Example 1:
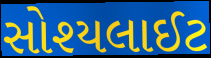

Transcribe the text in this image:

સોશ્યલાઈટ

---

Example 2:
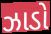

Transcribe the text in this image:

ઝાડો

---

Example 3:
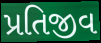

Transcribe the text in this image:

પ્રતિજીવ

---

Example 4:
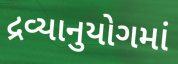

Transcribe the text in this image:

દ્રવ્યાનુયોગમાં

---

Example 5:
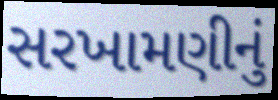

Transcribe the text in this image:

સરખામણીનું